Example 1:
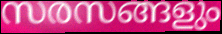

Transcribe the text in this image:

സരസങ്ങളും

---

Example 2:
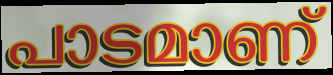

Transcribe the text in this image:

പാടമാണ്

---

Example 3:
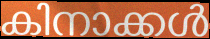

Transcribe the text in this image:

കിനാക്കൾ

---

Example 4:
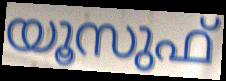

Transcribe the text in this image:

യൂസുഫ്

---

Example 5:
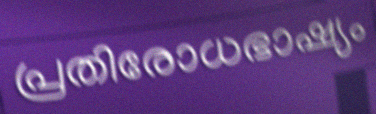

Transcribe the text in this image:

പ്രതിരോധഭാഷ്യം